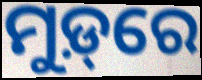
ମୁଡ଼୍‌ରେ